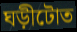
ঘড়ীটোত